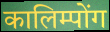
कालिम्पोंग